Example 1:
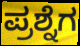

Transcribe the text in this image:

ಪ್ರಶ್ನೆಗ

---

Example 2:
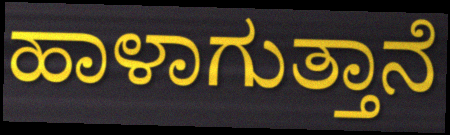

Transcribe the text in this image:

ಹಾಳಾಗುತ್ತಾನೆ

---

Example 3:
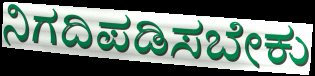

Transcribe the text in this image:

ನಿಗದಿಪಡಿಸಬೇಕು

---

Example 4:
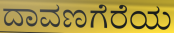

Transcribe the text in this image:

ದಾವಣಗೆರೆಯ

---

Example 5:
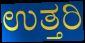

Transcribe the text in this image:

ಉತ್ತರಿ